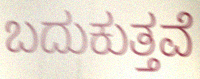
ಬದುಕುತ್ತವೆ